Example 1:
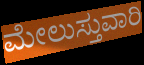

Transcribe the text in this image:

ಮೇಲುಸ್ತುವಾರಿ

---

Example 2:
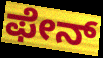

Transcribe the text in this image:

ಫೇನ್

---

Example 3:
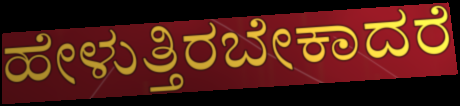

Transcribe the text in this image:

ಹೇಳುತ್ತಿರಬೇಕಾದರೆ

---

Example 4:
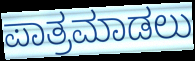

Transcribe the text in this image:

ಪಾತ್ರಮಾಡಲು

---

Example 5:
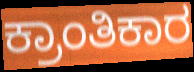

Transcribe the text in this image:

ಕ್ರಾಂತಿಕಾರ